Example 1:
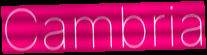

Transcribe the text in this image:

Cambria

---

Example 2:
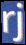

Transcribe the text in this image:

rj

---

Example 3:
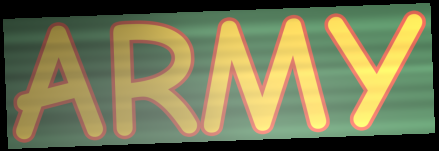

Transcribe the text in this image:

ARMY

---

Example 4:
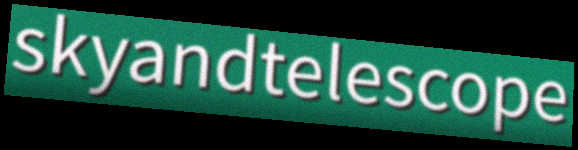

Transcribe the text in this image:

skyandtelescope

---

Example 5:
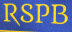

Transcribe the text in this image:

RSPB